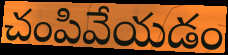
చంపివేయడం